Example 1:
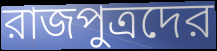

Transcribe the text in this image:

রাজপুত্রদের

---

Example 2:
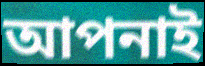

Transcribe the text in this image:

আপনাই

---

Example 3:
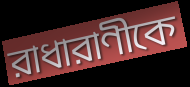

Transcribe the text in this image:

রাধারাণীকে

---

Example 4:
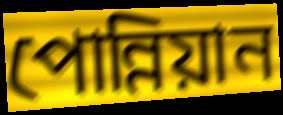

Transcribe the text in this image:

পোন্নিয়ান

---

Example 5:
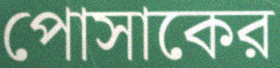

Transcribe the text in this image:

পোসাকের